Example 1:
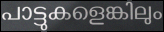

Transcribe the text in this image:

പാട്ടുകളെങ്കിലും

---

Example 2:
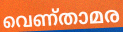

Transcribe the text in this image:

വെണ്താമര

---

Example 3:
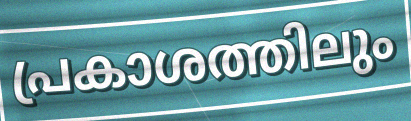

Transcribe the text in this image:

പ്രകാശത്തിലും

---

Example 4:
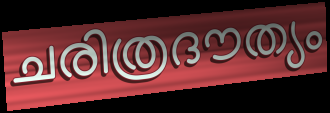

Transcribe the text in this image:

ചരിത്രദൗത്യം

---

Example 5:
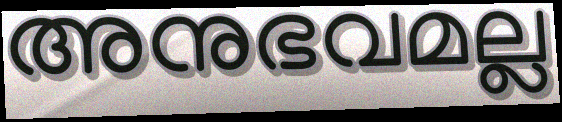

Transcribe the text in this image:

അനുഭവമല്ല